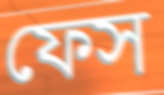
ফেস